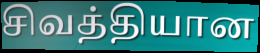
சிவத்தியான